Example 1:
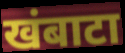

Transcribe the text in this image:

खंबाटा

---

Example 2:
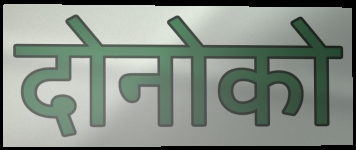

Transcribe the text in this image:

दोनोको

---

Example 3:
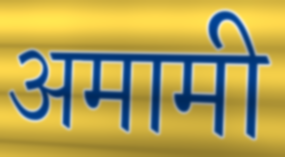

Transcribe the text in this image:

अमामी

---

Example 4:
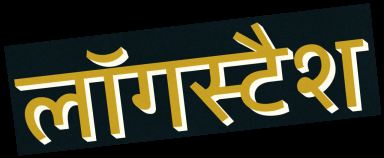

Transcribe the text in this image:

लॉगस्टैश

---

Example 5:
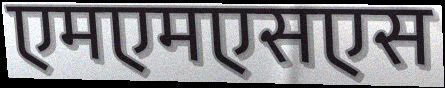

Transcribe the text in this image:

एमएमएसएस